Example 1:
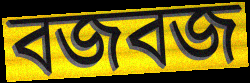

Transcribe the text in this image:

বজবজ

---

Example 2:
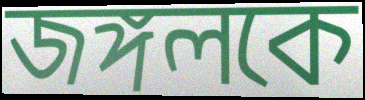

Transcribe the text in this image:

জঙ্গলকে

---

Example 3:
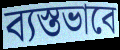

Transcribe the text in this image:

ব্যস্তভাবে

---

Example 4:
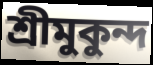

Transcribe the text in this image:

শ্রীমুকুন্দ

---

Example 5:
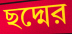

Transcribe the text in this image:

ছদ্মের